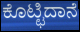
ಕೊಟ್ಟಿದಾನೆ